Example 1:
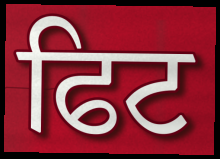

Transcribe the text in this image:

ਫਿਟ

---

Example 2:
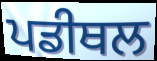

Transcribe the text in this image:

ਪਡੀਥਲ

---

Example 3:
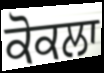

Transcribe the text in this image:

ਕੋਕਲਾ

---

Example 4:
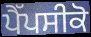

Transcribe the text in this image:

ਪੈੱਪਸੀਕੋ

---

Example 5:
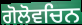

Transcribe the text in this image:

ਗੋਲੋਵਚਿਨ